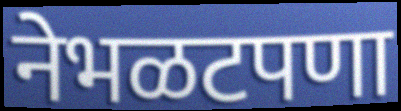
नेभळटपणा